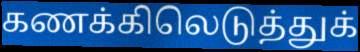
கணக்கிலெடுத்துக்